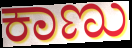
ಕಾಣು